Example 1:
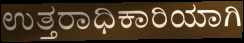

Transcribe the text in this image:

ಉತ್ತರಾಧಿಕಾರಿಯಾಗಿ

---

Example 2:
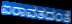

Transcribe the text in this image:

ಐರಾವತದಂತೆ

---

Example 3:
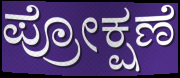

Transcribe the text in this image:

ಪ್ರೋಕ್ಷಣೆ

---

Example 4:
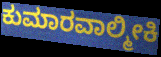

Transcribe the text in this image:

ಕುಮಾರವಾಲ್ಮೀಕಿ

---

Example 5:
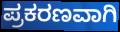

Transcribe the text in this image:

ಪ್ರಕರಣವಾಗಿ